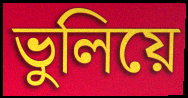
ভুলিয়ে